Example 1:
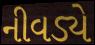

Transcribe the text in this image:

નીવડ્યે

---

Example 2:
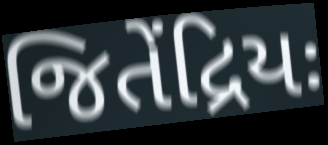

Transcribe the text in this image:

જિતેંદ્રિયઃ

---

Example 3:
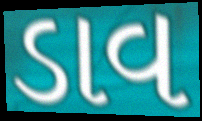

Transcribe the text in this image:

ડાવ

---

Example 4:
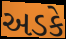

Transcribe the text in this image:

અડકે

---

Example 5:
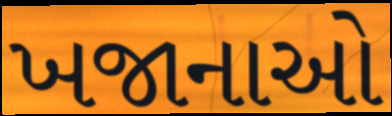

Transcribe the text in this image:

ખજાનાઓ